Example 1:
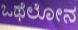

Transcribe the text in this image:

ಒಥೆಲೋನ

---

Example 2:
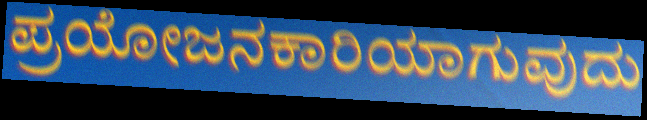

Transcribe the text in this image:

ಪ್ರಯೋಜನಕಾರಿಯಾಗುವುದು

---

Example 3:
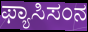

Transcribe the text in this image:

ಫ್ಯಾಸಿಸಂನ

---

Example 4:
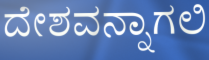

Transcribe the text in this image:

ದೇಶವನ್ನಾಗಲಿ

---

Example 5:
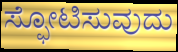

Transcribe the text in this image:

ಸ್ಫೋಟಿಸುವುದು